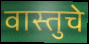
वास्तुचे